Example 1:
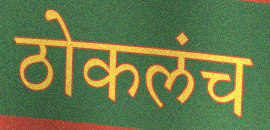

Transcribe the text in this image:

ठोकलंच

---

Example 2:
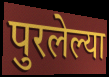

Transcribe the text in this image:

पुरलेल्या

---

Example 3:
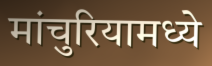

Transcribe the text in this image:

मांचुरियामध्ये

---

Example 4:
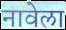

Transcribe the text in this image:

नावेला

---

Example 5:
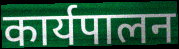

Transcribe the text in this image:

कार्यपालन